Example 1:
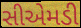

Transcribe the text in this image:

સીએમડી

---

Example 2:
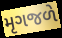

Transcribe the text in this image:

મૃગજળે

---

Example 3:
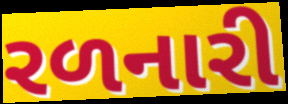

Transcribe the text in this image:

રળનારી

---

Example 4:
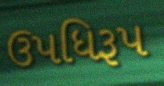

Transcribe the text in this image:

ઉપધિરૂપ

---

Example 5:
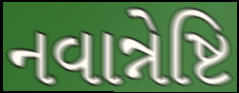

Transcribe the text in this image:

નવાન્નેષ્ટિ